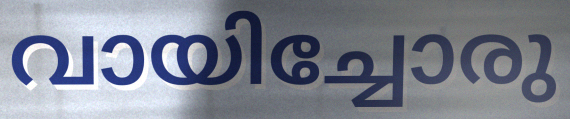
വായിച്ചോരു